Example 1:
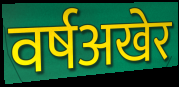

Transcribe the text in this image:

वर्षअखेर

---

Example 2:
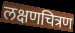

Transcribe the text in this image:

लक्षणचित्रण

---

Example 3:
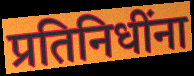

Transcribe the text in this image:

प्रतिनिधींना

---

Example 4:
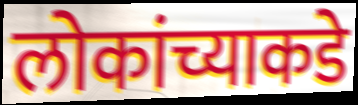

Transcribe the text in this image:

लोकांच्याकडे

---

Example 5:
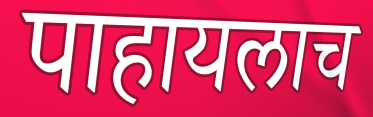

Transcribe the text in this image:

पाहायलाच